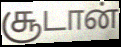
சூடான்